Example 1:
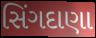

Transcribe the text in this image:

સિંગદાણા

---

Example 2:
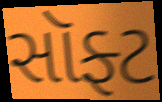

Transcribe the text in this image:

સૉફ્ટ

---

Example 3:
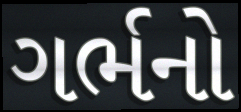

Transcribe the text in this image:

ગર્ભનો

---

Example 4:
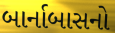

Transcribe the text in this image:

બાર્નાબાસનો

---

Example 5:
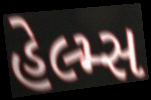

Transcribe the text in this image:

હેલ્મ્સ